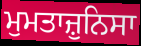
ਮੁਮਤਾਜ਼ੁਨਿਸਾ